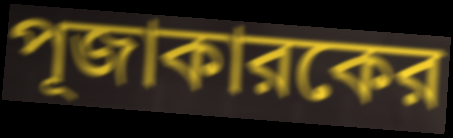
পূজাকারকের